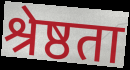
श्रेष्ठता